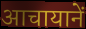
आचायानें